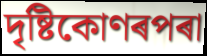
দৃষ্টিকোণৰপৰা